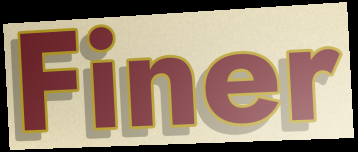
Finer